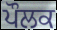
ਪੌਲਕ